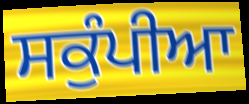
ਸਕੁੰਪੀਆ